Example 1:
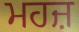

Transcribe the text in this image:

ਮਹਜ਼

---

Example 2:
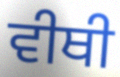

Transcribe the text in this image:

ਵੀਥੀ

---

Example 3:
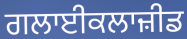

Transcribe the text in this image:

ਗਲਾਈਕਲਾਜ਼ੀਡ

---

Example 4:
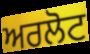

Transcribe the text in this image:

ਅਰਲੋਟ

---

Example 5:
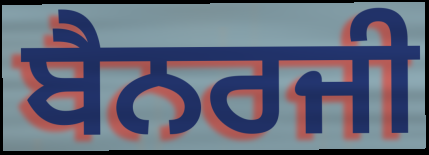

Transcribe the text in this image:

ਬੈਨਰਜੀ